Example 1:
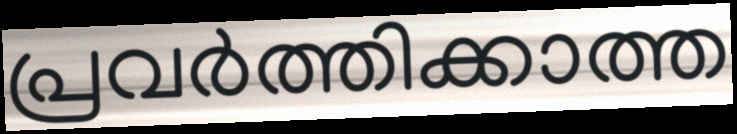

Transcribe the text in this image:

പ്രവർത്തിക്കാത്ത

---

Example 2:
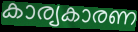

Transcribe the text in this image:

കാര്യകാരണ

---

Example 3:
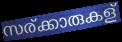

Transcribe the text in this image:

സര്ക്കാരുകള്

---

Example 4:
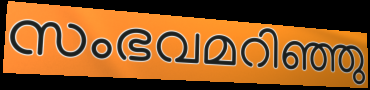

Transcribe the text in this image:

സംഭവമറിഞ്ഞു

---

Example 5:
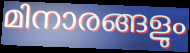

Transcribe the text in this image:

മിനാരങ്ങളും